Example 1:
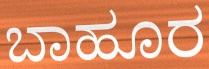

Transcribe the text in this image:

ಬಾಹೂರ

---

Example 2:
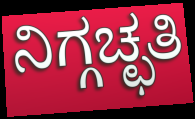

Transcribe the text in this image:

ನಿಗ್ಗಚ್ಛತಿ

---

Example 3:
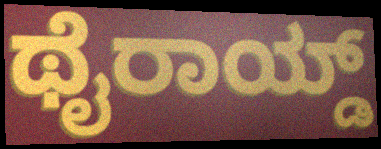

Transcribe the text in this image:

ಥೈರಾಯ್ಡ್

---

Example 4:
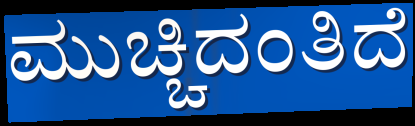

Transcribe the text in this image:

ಮುಚ್ಚಿದಂತಿದೆ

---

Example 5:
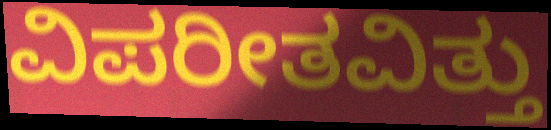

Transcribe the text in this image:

ವಿಪರೀತವಿತ್ತು